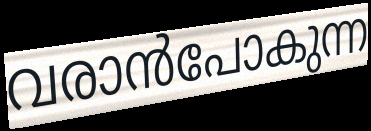
വരാൻപോകുന്ന